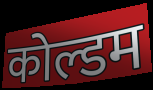
कोल्डम